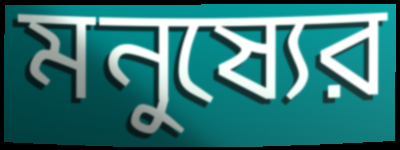
মনুষ্যের